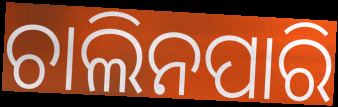
ଚାଲିନପାରି